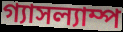
গ্যাসল্যাম্প